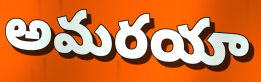
అమరయా